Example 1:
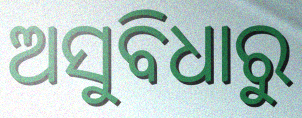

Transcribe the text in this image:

ଅସୁବିଧାରୁ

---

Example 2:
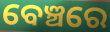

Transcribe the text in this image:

ବେଞ୍ଚରେ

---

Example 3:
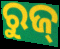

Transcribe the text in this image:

ରୁଜ୍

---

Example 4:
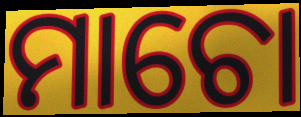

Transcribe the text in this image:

ମାଚୋ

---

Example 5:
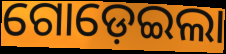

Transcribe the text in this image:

ଗୋଡ଼େଇଲା